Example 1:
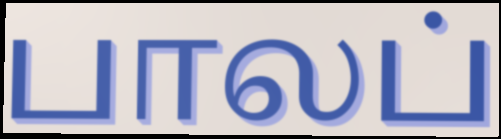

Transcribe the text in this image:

பாலப்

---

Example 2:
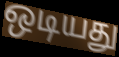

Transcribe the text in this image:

ஒடியது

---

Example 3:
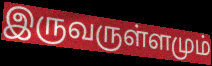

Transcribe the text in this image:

இருவருள்ளமும்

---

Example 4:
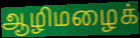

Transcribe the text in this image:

ஆழிமழைக்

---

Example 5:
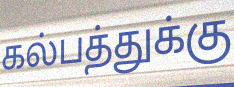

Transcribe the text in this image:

கல்பத்துக்கு